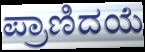
ಪ್ರಾಣಿದಯೆ